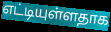
எட்டியுள்ளதாக